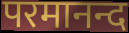
परमानन्‍द